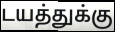
டயத்துக்கு